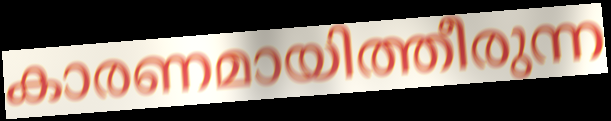
കാരണമായിത്തീരുന്ന